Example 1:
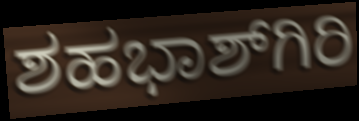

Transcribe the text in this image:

ಶಹಭಾಶ್‌ಗಿರಿ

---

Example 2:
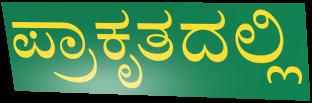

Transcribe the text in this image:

ಪ್ರಾಕೃತದಲ್ಲಿ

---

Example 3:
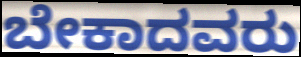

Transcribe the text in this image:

ಬೇಕಾದವರು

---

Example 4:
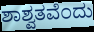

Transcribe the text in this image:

ಶಾಶ್ವತವೆಂದು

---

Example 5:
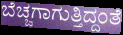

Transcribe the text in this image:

ಬೆಚ್ಚಗಾಗುತ್ತಿದ್ದಂತೆ